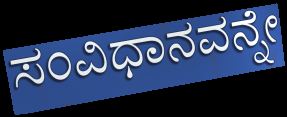
ಸಂವಿಧಾನವನ್ನೇ